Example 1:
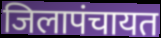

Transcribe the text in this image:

जिलापंचायत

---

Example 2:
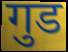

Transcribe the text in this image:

गुड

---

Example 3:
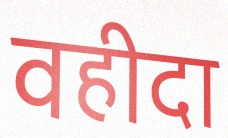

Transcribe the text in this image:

वहीदा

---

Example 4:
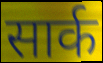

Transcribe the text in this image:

सार्क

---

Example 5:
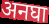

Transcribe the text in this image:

अनघा